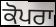
ਕੋਪਰਾ